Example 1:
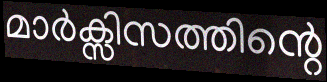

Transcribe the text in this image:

മാർക്സിസത്തിന്റെ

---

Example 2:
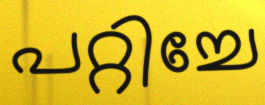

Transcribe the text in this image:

പറ്റിച്ചേ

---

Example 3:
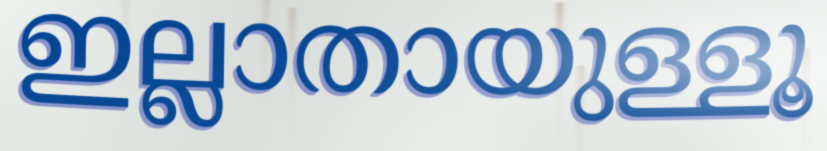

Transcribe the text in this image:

ഇല്ലാതായുള്ളൂ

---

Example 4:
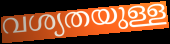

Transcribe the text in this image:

വശ്യതയുള്ള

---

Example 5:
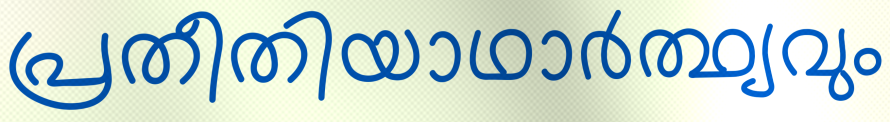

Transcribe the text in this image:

പ്രതീതിയാഥാർത്ഥ്യവും